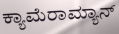
ಕ್ಯಾಮೆರಾಮ್ಯಾನ್